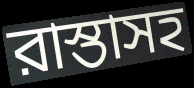
রাস্তাসহ